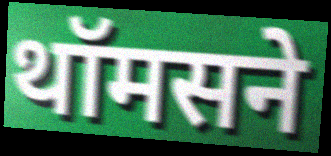
थॉमसने